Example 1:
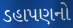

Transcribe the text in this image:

ડહાપણનો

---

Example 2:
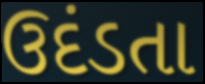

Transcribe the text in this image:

ઉદંડતા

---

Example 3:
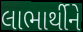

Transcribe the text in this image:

લાભાર્થીને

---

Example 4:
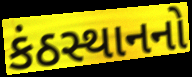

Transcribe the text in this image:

કંઠસ્થાનનો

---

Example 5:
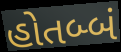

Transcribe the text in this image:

હોતબ્બં